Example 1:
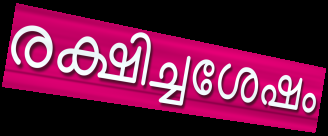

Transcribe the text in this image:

രക്ഷിച്ചശേഷം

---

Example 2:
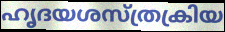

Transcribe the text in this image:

ഹൃദയശസ്ത്രക്രിയ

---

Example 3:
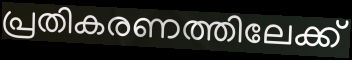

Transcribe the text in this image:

പ്രതികരണത്തിലേക്ക്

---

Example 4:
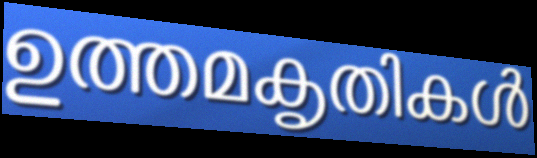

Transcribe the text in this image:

ഉത്തമകൃതികൾ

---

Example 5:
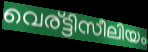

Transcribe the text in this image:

വെര്ട്ടിസീലിയം